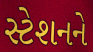
સ્ટેશનને